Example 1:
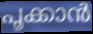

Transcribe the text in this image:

പൂക്കാൻ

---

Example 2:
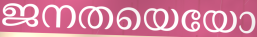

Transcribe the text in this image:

ജനതയെയോ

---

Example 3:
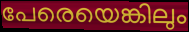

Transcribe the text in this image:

പേരെയെങ്കിലും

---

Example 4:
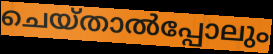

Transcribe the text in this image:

ചെയ്താൽപ്പോലും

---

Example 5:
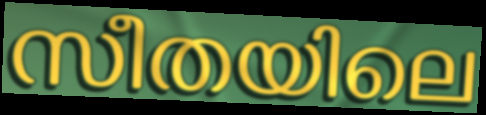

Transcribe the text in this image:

സീതയിലെ